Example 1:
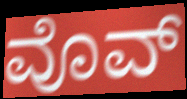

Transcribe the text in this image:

ವೊವ್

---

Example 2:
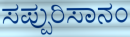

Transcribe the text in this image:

ಸಪ್ಪುರಿಸಾನಂ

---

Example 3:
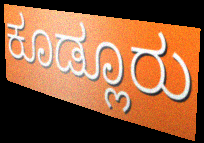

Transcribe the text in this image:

ಕೂಡ್ಲೂರು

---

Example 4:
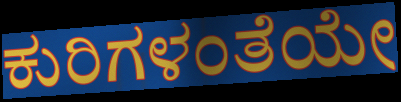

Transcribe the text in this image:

ಕುರಿಗಳಂತೆಯೇ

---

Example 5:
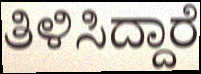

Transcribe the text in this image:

ತಿಳಿಸಿದ್ದಾರೆ